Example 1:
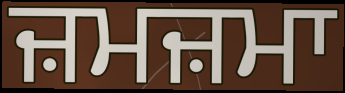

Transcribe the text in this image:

ਜ਼ਮਜ਼ਮਾ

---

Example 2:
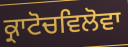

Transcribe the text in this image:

ਕ੍ਰਾਟੋਚਵਿਲੋਵਾ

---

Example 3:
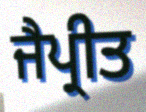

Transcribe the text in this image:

ਜੈਪ੍ਰੀਤ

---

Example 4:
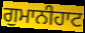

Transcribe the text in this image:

ਗੁਮਾਨੀਹਾਟ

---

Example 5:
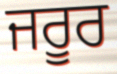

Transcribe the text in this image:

ਜਰੂਰ